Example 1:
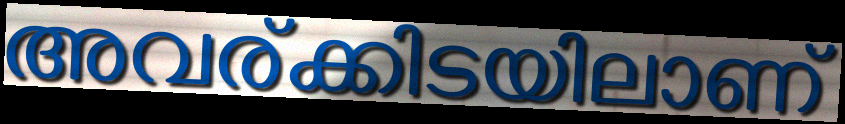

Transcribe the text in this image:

അവര്ക്കിടയിലാണ്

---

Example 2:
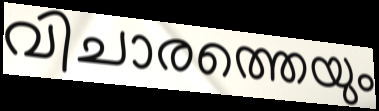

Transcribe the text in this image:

വിചാരത്തെയും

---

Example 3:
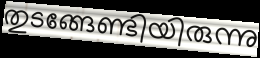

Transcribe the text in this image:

തുടങ്ങേണ്ടിയിരുന്നു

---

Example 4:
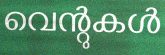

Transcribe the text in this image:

വെന്റുകൾ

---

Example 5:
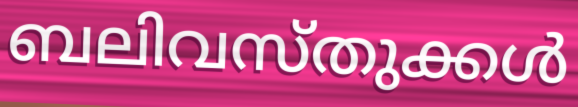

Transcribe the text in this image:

ബലിവസ്തുക്കൾ